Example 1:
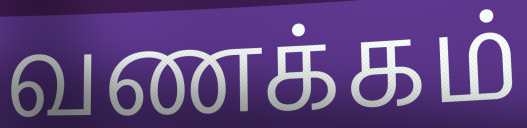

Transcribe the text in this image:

வணக்கம்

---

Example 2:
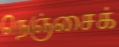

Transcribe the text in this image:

நெஞ்சைக்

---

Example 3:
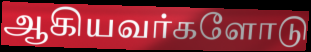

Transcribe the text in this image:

ஆகியவர்களோடு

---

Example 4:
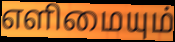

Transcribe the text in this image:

எளிமையும்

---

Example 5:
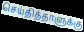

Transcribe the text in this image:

செய்தித்தாளுக்கு